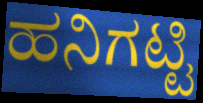
ಹನಿಗಟ್ಟಿ